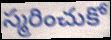
స్మరించుకో